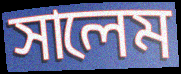
সালেম